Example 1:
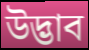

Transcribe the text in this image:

উদ্ভাব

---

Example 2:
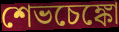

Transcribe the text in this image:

শেভচেঙ্কো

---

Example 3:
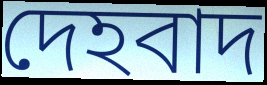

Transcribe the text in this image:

দেহবাদ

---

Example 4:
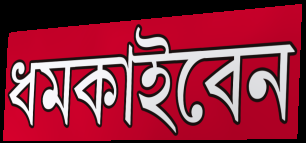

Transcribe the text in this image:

ধমকাইবেন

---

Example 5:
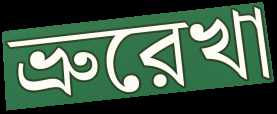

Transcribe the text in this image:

ভ্রুরেখা